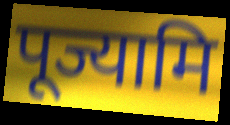
पूज्यामि